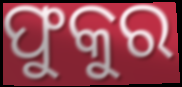
ଫୁକୁର